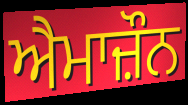
ਐਮਾਜ਼ੌਨ